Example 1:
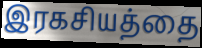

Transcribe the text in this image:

இரகசியத்தை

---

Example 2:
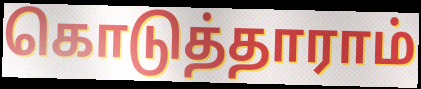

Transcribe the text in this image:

கொடுத்தாராம்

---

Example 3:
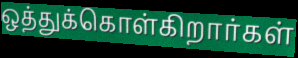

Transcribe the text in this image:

ஒத்துக்கொள்கிறார்கள்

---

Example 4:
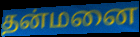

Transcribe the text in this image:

தன்மனை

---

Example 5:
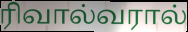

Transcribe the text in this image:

ரிவால்வரால்